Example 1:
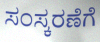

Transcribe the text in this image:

ಸಂಸ್ಕರಣೆಗೆ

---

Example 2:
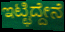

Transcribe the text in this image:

ಇಟ್ಟಿದ್ದೇನೆ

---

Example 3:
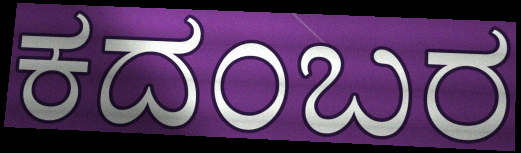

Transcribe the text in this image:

ಕದಂಬರ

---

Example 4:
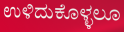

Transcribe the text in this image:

ಉಳಿದುಕೊಳ್ಳಲೂ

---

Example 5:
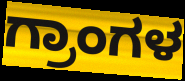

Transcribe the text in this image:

ಗ್ರಾಂಗಳ